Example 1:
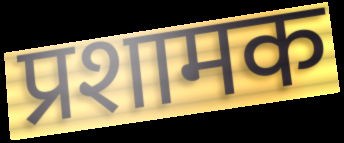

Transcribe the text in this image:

प्रशामक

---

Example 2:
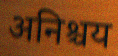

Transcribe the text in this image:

अनिश्चय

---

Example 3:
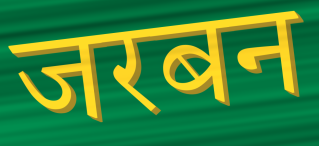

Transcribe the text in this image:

जरबन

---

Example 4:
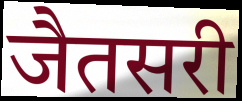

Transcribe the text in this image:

जैतसरी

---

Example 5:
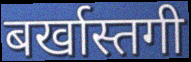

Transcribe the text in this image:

बर्खास्तगी